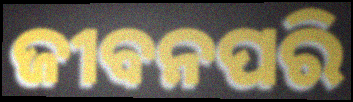
ଜୀବନପରି